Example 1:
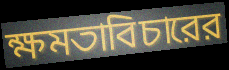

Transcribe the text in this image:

ক্ষমতাবিচারের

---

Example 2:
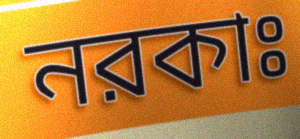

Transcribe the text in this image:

নরকাঃ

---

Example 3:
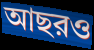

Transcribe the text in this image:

আছরও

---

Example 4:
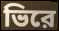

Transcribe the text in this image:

ভিরে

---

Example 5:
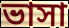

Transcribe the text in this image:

ভাসা